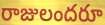
రాజులందరూ